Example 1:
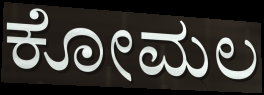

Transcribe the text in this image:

ಕೋಮಲ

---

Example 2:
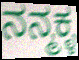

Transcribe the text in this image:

ನನ್ಮಕ್ಳ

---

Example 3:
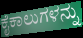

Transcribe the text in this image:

ಕೈಕಾಲುಗಳನ್ನು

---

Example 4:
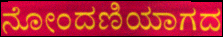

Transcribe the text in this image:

ನೋಂದಣಿಯಾಗದ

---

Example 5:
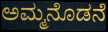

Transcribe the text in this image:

ಅಮ್ಮನೊಡನೆ